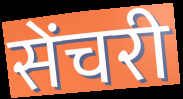
सेंचरी